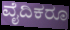
ವೈದಿಕರೂ